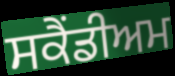
ਸਕੈਂਡੀਅਮ